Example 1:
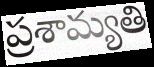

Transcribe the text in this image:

ప్రశామ్యతి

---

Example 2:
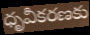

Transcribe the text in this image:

ధృవీకరణకు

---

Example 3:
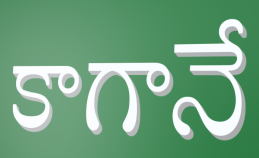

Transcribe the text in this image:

కాగానే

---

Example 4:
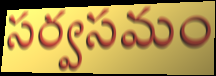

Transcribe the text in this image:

సర్వసమం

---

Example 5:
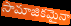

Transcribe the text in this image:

సామాజికమైనా